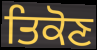
ਤਿਕੋਣ